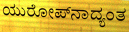
ಯುರೋಪ್‌ನಾದ್ಯಂತ